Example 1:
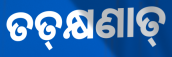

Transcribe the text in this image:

ତତ୍‍କ୍ଷଣାତ୍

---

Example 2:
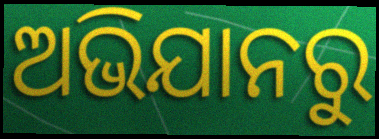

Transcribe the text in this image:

ଅଭିଯାନରୁ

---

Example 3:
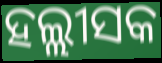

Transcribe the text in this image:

ହଲ୍ଲୀସକ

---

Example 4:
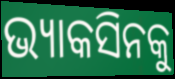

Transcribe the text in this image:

ଭ୍ୟାକସିନକୁ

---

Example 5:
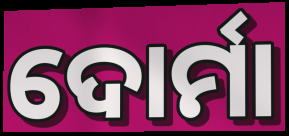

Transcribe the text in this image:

ଦୋର୍ମା